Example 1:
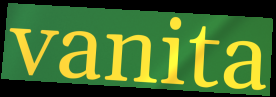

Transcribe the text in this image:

vanita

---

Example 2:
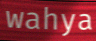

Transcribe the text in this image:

wahya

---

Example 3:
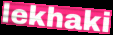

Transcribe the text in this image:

lekhaki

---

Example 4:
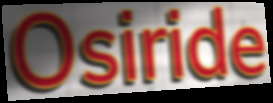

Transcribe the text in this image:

Osiride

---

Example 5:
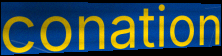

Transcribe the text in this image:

conation